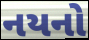
નયનો